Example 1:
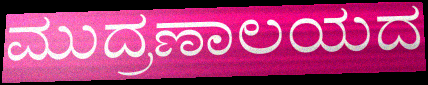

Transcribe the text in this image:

ಮುದ್ರಣಾಲಯದ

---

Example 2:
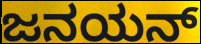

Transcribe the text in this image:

ಜನಯನ್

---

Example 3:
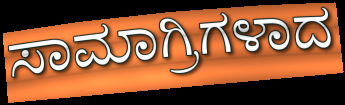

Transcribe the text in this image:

ಸಾಮಾಗ್ರಿಗಳಾದ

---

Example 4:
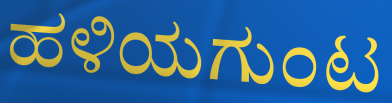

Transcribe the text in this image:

ಹಳಿಯಗುಂಟ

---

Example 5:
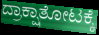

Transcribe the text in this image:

ದ್ರಾಕ್ಷಾತೋಟಕ್ಕೆ